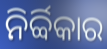
ନିର୍ବ୍ବିକାର